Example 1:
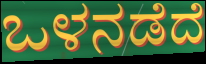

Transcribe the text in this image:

ಒಳನಡೆದೆ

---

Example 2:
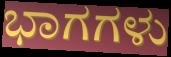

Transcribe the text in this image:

ಭಾಗಗಳು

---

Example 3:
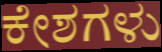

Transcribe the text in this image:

ಕೇಶಗಳು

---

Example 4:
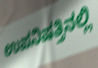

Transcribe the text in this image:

ಉಪನಿಷತ್ತಿನಲ್ಲಿ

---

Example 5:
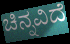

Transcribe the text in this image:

ಚಿನ್ನವಿದೆ